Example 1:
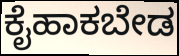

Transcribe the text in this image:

ಕೈಹಾಕಬೇಡ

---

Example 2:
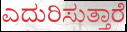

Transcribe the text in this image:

ಎದುರಿಸುತ್ತಾರೆ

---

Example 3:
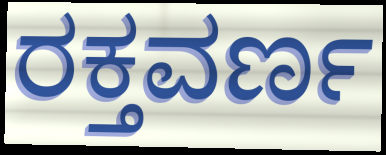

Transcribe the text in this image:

ರಕ್ತವರ್ಣ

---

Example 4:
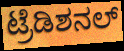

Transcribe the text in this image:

ಟ್ರೆಡಿಶನಲ್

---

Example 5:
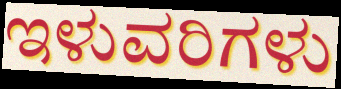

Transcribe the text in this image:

ಇಳುವರಿಗಳು